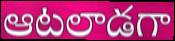
ఆటలాడగా